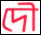
দৌ